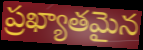
ప్రఖ్యాతమైన